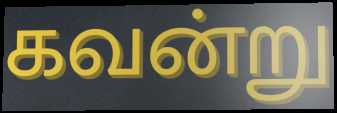
கவன்று